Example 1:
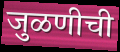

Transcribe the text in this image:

जुळणीची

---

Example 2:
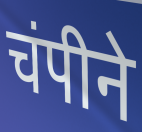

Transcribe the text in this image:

चंपीने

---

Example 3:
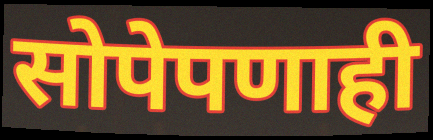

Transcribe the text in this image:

सोपेपणाही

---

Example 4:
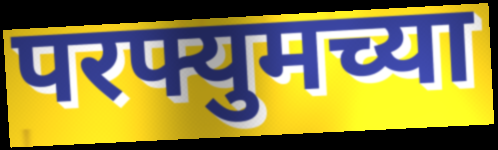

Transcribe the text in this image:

परफ्युमच्या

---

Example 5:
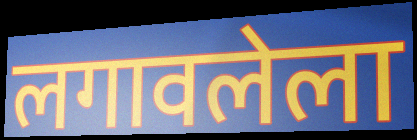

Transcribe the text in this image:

लगावलेला